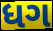
ધગ